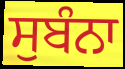
ਸੁਬੰਨਾ